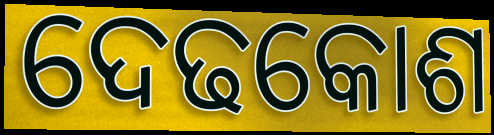
ଦେଢକୋଶ